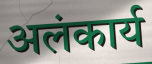
अलंकार्य